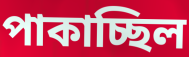
পাকাচ্ছিল